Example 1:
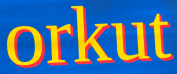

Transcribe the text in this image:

orkut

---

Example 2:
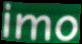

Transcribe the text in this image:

imo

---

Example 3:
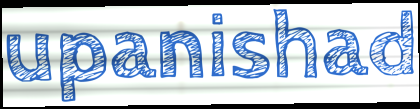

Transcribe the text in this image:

upanishad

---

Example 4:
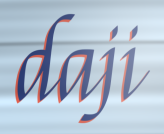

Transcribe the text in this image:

daji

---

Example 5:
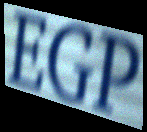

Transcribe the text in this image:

EGP